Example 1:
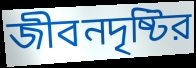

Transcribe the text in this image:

জীবনদৃষ্টির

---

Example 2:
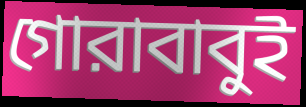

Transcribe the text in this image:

গোরাবাবুই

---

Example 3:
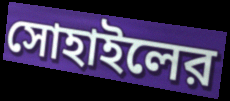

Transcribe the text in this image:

সোহাইলের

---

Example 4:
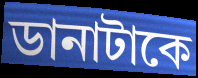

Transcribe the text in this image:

ডানাটাকে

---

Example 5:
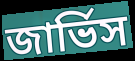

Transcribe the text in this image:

জার্ভিস